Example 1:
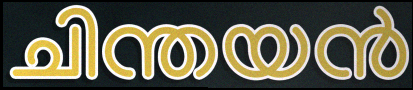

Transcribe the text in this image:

ചിന്തയൻ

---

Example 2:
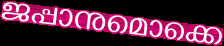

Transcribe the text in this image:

ജപ്പാനുമൊക്കെ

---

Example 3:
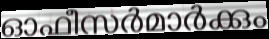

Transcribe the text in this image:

ഓഫീസർമാർക്കും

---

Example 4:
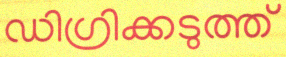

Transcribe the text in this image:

ഡിഗ്രിക്കടുത്ത്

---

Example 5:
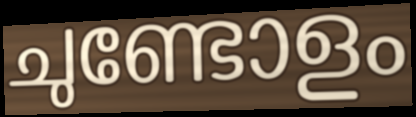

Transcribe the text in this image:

ചുണ്ടോളം